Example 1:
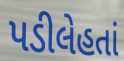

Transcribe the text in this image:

પડીલેહતાં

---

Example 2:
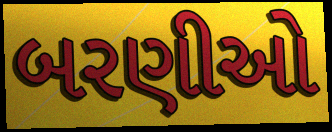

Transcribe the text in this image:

બરણીઓ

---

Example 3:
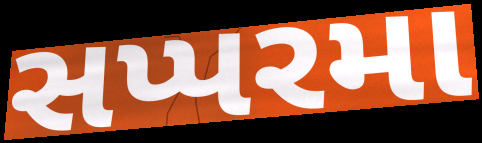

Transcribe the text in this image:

સપ્પરમા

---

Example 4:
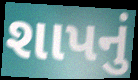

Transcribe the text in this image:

શાપનું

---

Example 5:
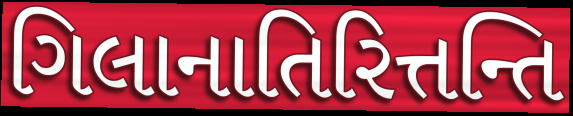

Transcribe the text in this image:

ગિલાનાતિરિત્તન્તિ